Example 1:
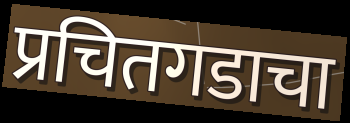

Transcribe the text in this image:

प्रचितगडाचा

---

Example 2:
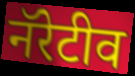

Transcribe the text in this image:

नॅरेटीव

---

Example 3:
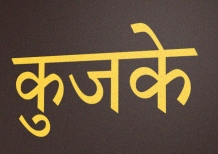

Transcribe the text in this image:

कुजके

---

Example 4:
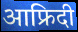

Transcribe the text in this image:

आफ्रिदी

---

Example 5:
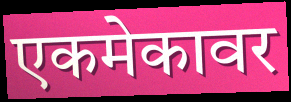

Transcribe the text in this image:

एकमेकावर